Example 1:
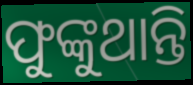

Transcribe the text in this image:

ଫୁଙ୍କୁଥାନ୍ତି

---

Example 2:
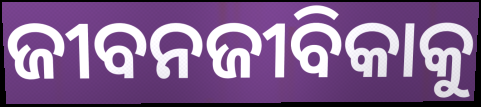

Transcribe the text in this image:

ଜୀବନଜୀବିକାକୁ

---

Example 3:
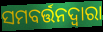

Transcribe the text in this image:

ସମବର୍ତ୍ତନଦ୍ୱାରା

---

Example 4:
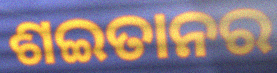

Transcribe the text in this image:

ଶଇତାନର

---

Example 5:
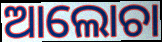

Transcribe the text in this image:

ଆଲୋଚା